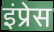
इंप्रेस